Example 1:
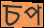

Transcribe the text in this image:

চপ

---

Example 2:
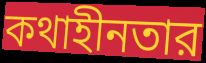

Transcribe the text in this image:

কথাহীনতার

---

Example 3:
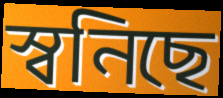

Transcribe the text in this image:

স্বনিছে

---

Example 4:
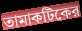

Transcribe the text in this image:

তামাকটিকের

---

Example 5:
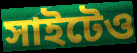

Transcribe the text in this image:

সাইটেও